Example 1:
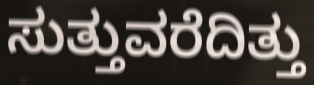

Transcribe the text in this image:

ಸುತ್ತುವರೆದಿತ್ತು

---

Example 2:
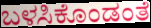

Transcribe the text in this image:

ಬಳಸಿಕೊಂಡಂತೆ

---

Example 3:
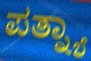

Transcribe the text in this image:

ಪತ್ನ್ಯಾ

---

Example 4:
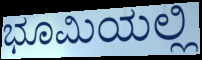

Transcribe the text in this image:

ಭೂಮಿಯಲ್ಲಿ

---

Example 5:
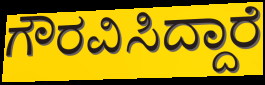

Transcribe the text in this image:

ಗೌರವಿಸಿದ್ದಾರೆ